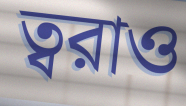
ত্বরাও